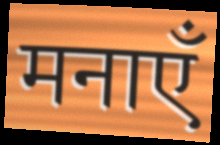
मनाएँ